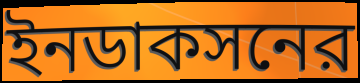
ইনডাকসনের